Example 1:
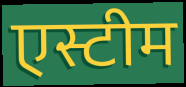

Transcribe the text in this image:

एस्टीम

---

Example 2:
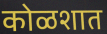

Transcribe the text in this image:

कोळशात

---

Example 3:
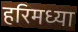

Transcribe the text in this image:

हरिमध्या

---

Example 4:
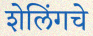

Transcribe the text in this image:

शेलिंगचे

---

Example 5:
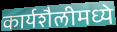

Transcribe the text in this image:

कार्यशैलीमध्ये